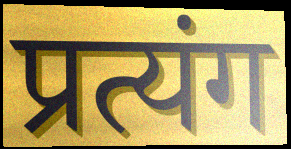
प्रत्यंग